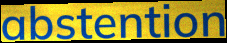
abstention